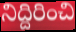
నిద్దిరించి